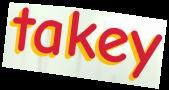
takey